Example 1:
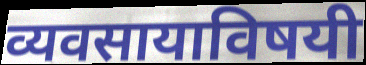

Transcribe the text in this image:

व्यवसायाविषयी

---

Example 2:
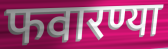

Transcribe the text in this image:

फवारण्या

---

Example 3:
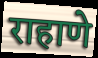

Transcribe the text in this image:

राहाणे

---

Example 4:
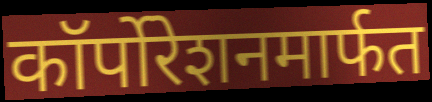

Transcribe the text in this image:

कॉर्पोरेशनमार्फत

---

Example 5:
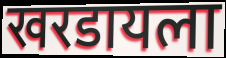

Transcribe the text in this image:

खरडायला